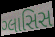
ગ્લાસિસ